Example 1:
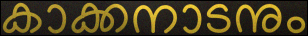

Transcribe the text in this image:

കാക്കനാടനും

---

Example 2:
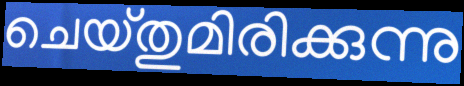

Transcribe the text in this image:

ചെയ്തുമിരിക്കുന്നു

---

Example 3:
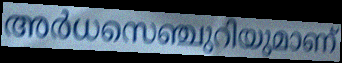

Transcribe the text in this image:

അർധസെഞ്ചുറിയുമാണ്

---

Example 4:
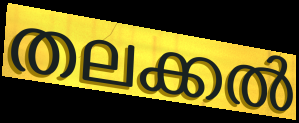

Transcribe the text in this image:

തലക്കൽ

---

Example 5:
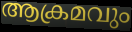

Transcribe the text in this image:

ആക്രമവും